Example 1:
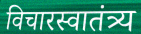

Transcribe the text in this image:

विचारस्वातंत्र्य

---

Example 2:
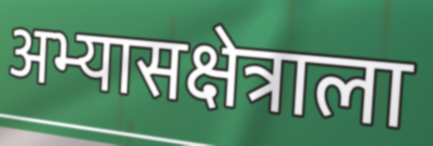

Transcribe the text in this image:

अभ्यासक्षेत्राला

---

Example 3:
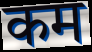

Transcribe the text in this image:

कम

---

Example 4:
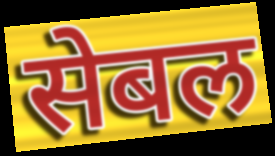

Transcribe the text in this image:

सेबल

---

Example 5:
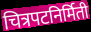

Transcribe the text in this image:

चित्रपटनिर्मिती